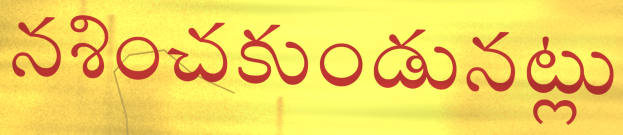
నశించకుండునట్లు